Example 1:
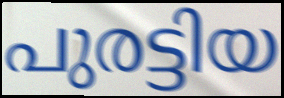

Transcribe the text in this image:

പുരട്ടിയ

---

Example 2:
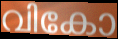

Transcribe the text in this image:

വികോ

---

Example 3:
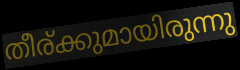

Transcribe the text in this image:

തീര്ക്കുമായിരുന്നു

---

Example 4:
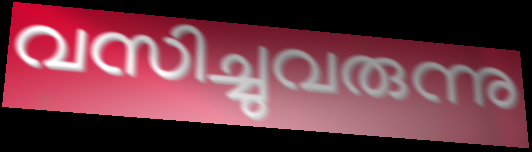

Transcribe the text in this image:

വസിച്ചുവരുന്നു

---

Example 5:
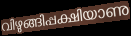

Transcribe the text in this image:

വിഴുങ്ങിപ്പക്ഷിയാണു